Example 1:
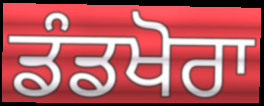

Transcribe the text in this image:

ਡੰਡਖੋਰਾ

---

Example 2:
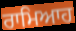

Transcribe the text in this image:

ਰਾਮਿਆਹ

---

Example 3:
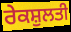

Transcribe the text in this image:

ਰੇਕਸ਼ੁਲਤੀ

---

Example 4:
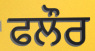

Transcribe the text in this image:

ਫਲੌਰ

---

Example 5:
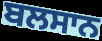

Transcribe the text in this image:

ਬਲਸਾਨ